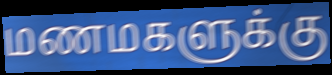
மணமகளுக்கு